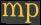
mp